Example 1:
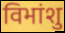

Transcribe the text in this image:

विभांशु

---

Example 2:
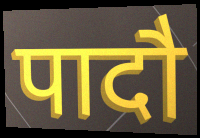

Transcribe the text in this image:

पादौ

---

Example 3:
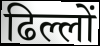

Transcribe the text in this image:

ढिल्लों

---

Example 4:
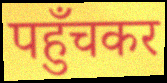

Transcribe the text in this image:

पहुँचकर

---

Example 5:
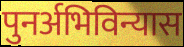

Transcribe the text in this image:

पुनर्अभिविन्यास